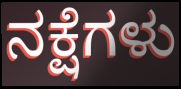
ನಕ್ಷೆಗಳು